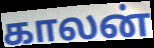
காலன்